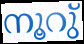
നൂറു്